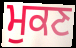
ਮੁਕਣ